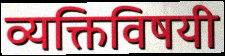
व्यक्तिविषयी